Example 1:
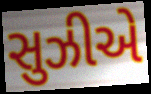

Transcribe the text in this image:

સુઝીએ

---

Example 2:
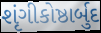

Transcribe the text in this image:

શૃંગીકોષ્ઠાર્બુદ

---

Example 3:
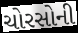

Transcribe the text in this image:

ચોરસોની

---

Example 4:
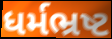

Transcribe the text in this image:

ધર્મભ્રષ્ટ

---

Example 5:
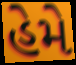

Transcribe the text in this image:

હેમે